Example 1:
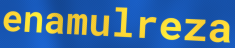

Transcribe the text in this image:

enamulreza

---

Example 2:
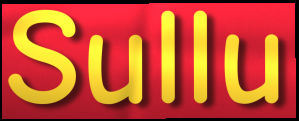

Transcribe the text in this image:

Sullu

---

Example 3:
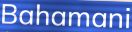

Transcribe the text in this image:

Bahamani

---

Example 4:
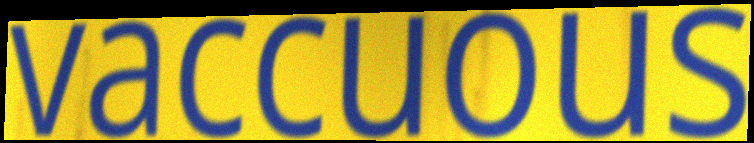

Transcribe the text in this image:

vaccuous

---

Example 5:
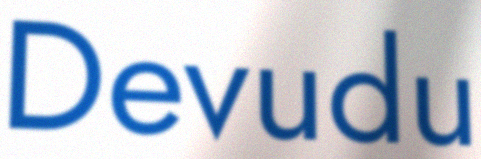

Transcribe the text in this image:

Devudu